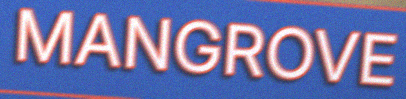
MANGROVE